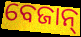
ବେଜାନ୍